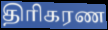
திரிகரண